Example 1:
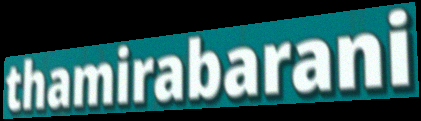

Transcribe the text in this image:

thamirabarani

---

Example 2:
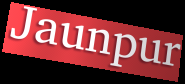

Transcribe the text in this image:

Jaunpur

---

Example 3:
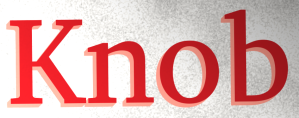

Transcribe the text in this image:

Knob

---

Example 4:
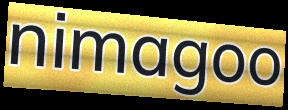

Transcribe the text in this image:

nimagoo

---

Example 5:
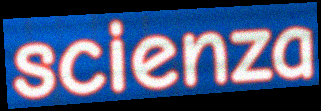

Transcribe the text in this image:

scienza